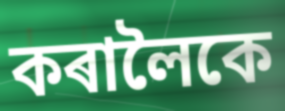
কৰালৈকে